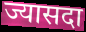
ज्यासदा